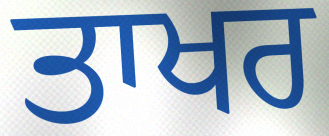
ਤਾਖਰ